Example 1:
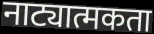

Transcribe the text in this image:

नाट्यात्मकता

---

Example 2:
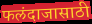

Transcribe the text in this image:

फलंदाजासाठी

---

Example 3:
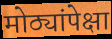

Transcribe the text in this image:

मोठ्यांपेक्षा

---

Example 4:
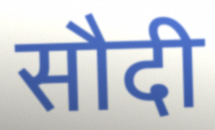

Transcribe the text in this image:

सौदी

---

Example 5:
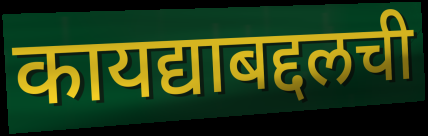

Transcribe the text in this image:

कायद्याबद्दलची